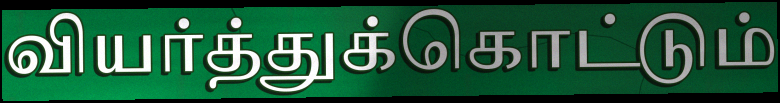
வியர்த்துக்கொட்டும்